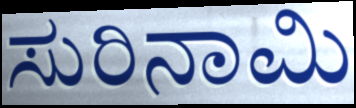
ಸುರಿನಾಮಿ